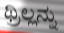
ಥ್ರಿಲ್ಲನ್ನು